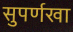
सुपर्णखा